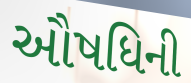
ઔષધિની